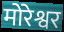
मोरेश्वर